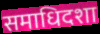
समाधिदशा